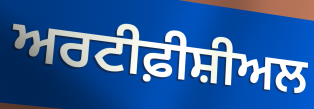
ਅਰਟੀਫ਼ੀਸ਼ੀਅਲ